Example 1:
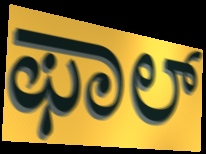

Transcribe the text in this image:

ಫಾಲ್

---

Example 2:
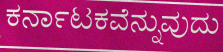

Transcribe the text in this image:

ಕರ್ನಾಟಕವೆನ್ನುವುದು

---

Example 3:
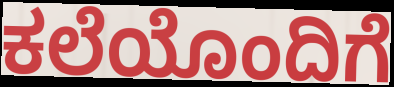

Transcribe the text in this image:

ಕಲೆಯೊಂದಿಗೆ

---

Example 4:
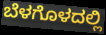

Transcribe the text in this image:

ಬೆಳಗೊಳದಲ್ಲಿ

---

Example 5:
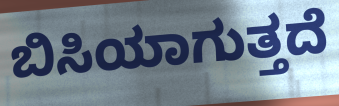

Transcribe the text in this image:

ಬಿಸಿಯಾಗುತ್ತದೆ